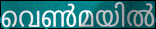
വെൺമയിൽ